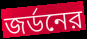
জর্ডনের